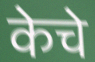
केचे